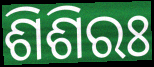
ଶିଶିରଃ